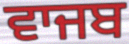
ਵਾਜਬ